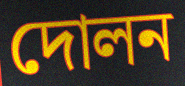
দোলন